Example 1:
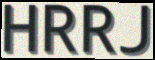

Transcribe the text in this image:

HRRJ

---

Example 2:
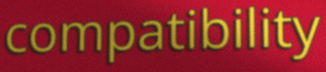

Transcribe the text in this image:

compatibility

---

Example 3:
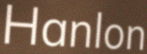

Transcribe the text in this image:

Hanlon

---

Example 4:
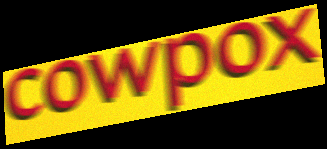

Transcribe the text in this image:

cowpox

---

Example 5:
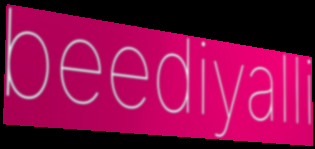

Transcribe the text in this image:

beediyalli